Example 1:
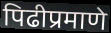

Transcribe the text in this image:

पिढीप्रमाणे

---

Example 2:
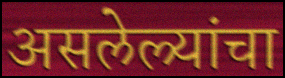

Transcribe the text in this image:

असलेल्यांचा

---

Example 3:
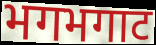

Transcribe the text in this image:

भगभगाट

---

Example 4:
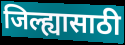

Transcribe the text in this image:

जिल्ह्यासाठी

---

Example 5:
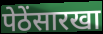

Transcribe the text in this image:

पेठेंसारखा